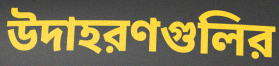
উদাহরণগুলির